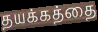
தயக்கத்தை